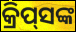
କ୍ରିପ୍‌ସଙ୍କ